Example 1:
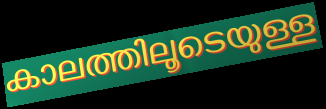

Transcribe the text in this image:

കാലത്തിലൂടെയുള്ള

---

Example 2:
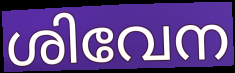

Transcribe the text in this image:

ശിവേന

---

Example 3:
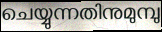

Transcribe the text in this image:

ചെയ്യുന്നതിനുമുമ്പു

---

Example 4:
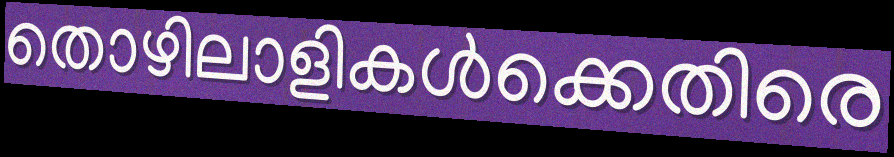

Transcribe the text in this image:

തൊഴിലാളികൾക്കെതിരെ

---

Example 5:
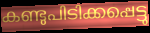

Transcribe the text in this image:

കണ്ടുപിടിക്കപ്പെട്ടു